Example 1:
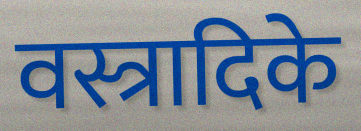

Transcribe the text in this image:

वस्त्रादिके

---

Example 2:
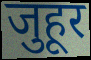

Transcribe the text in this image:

जुहूर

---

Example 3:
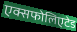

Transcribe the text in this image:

एक्सफोलिएटेड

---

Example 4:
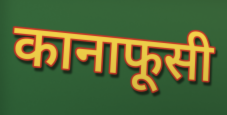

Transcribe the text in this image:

कानाफूसी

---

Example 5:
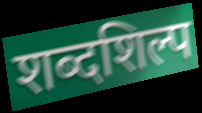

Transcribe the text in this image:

शब्दशिल्प